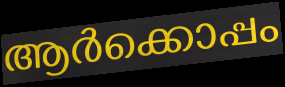
ആർക്കൊപ്പം